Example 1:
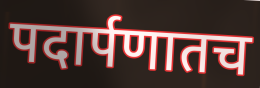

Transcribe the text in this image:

पदार्पणातच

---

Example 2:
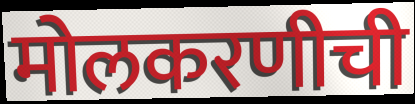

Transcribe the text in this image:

मोलकरणीची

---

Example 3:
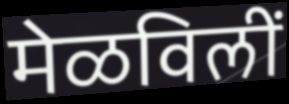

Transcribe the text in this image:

मेळविलीं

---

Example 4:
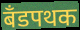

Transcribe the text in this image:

बँडपथक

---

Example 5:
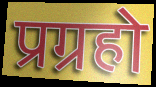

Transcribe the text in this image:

प्रग्रहो